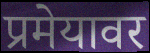
प्रमेयावर